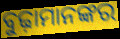
ବୁଢ଼ାମାନଙ୍କର